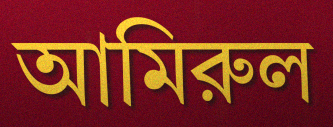
আমিরুল